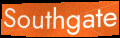
Southgate